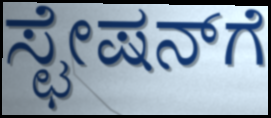
ಸ್ಟೇಷನ್‍ಗೆ